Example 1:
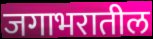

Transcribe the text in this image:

जगाभरातील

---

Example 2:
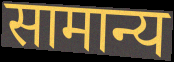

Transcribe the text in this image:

सामान्य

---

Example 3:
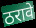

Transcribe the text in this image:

ठरावे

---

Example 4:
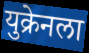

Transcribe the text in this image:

युक्रेनला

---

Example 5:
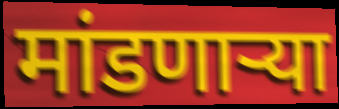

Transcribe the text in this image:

मांडणाऱ्या